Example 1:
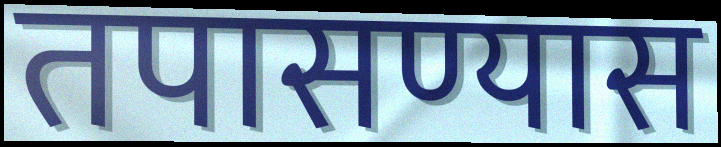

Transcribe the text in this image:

तपासण्यास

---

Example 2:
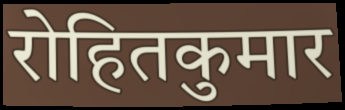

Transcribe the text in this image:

रोहितकुमार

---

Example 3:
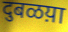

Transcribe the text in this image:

दुबळय़ा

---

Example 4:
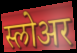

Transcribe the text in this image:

स्लोअर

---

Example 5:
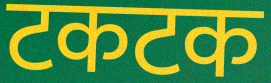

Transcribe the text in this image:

टकटक